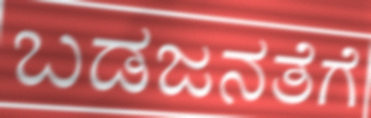
ಬಡಜನತೆಗೆ